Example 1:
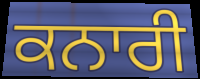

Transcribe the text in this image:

ਕਨਾਰੀ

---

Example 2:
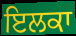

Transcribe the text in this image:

ਇਲਕਾ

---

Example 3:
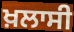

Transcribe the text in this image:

ਖ਼ਲਾਸੀ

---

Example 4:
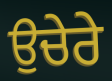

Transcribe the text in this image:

ਉਚੇਰੇ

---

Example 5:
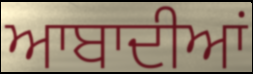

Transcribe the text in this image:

ਆਬਾਦੀਆਂ